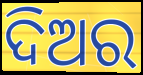
ଦିଅର